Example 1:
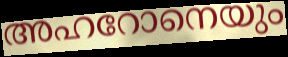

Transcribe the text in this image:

അഹറോനെയും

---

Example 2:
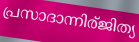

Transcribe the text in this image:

പ്രസാദാന്നിര്ജിത്യ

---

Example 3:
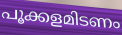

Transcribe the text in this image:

പൂക്കളമിടണം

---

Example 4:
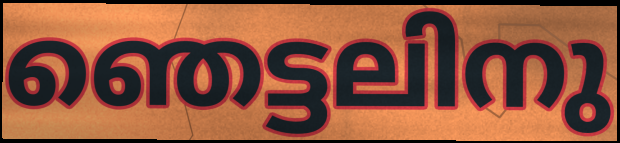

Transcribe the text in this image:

ഞെട്ടലിനു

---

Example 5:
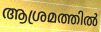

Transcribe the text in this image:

ആശ്രമത്തിൽ